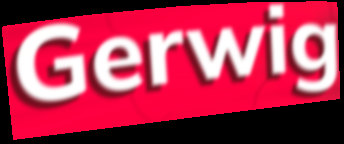
Gerwig